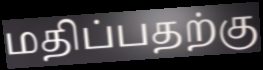
மதிப்பதற்கு